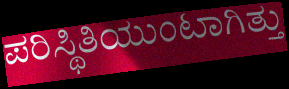
ಪರಿಸ್ಥಿತಿಯುಂಟಾಗಿತ್ತು